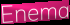
Enema